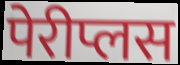
पेरीप्लस